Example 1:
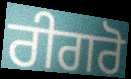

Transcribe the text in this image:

ਰੀਗਰੋ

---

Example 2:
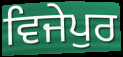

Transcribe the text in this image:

ਵਿਜੇਪੁਰ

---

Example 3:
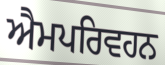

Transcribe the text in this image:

ਐਮਪਰਿਵਹਨ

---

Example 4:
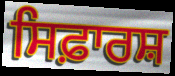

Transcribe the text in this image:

ਸਿਫ਼ਾਰਸ਼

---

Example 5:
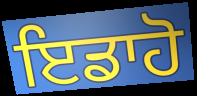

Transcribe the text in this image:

ਇਡਾਹੋ